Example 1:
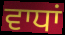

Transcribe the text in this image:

ਵਾਧਾਂ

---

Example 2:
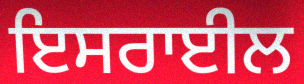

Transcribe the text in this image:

ਇਸਰਾਈਲ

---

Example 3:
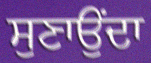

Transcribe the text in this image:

ਸੁਣਾਉਂਦਾ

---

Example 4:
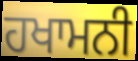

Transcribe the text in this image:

ਹਖਾਮਨੀ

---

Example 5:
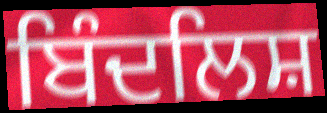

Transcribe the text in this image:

ਬਿੰਦਲਿਸ਼